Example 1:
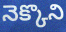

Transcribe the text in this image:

నెక్కొని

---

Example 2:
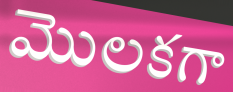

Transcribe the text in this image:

మొలకగా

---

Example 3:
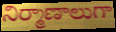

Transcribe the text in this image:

నిర్మాణాలుగా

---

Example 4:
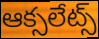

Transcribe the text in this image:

ఆక్సలేట్స్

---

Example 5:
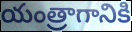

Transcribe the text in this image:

యంత్రాగానికి